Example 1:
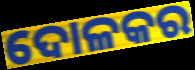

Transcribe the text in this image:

ଦୋଳକର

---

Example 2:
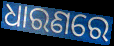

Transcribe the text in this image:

ଧାରଣରେ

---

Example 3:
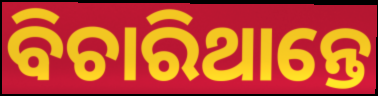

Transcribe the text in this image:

ବିଚାରିଥାନ୍ତେ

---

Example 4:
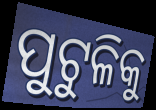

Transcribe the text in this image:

ପୁଟୁଳିକୁ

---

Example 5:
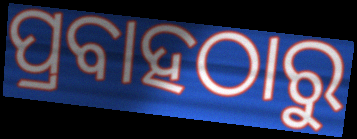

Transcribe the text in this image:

ପ୍ରବାହଠାରୁ